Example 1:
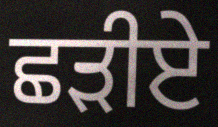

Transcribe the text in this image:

ਛੜੀਏ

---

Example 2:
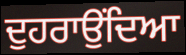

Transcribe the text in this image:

ਦੁਹਰਾਉਂਦਿਆ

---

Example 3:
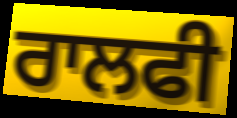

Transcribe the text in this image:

ਰਾਲਫੀ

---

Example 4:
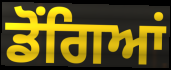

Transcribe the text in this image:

ਡੋਂਗਿਆਂ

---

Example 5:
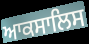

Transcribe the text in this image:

ਆਕਸਾਲਿਸ